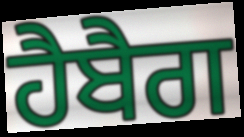
ਹੈਬੈਗ